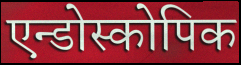
एन्डोस्कोपिक